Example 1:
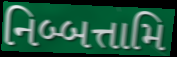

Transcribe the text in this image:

નિબ્બત્તામિ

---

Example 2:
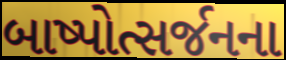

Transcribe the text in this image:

બાષ્પોત્સર્જનના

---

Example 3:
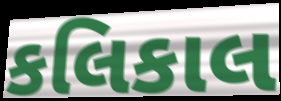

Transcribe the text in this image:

કલિકાલ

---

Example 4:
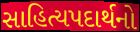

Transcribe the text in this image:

સાહિત્યપદાર્થનો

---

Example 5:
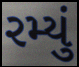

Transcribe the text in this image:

રમ્યું